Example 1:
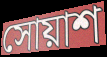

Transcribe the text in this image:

সোয়াশ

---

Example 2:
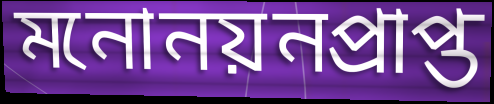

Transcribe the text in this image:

মনোনয়নপ্রাপ্ত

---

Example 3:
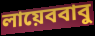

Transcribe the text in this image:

লায়েববাবু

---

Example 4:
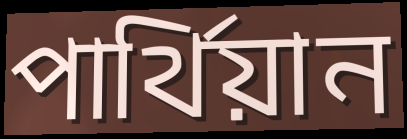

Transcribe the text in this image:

পার্থিয়ান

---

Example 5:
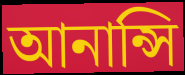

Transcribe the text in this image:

আনান্সি